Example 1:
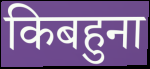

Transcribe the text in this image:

किबहुना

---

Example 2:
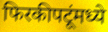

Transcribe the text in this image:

फिरकीपटूंमध्ये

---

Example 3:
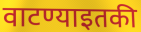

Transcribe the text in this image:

वाटण्याइतकी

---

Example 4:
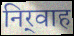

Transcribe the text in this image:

निर्वाह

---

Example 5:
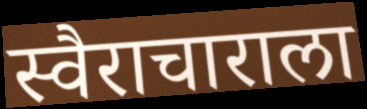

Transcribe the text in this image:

स्वैराचाराला